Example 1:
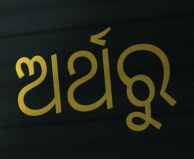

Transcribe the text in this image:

ଅର୍ଥରୁ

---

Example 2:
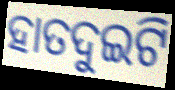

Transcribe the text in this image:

ହାତଦୁଇଟି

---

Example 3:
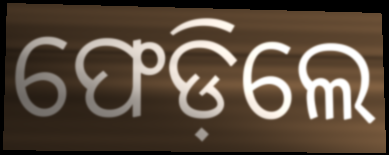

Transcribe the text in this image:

ଫେଡ଼ିଲେ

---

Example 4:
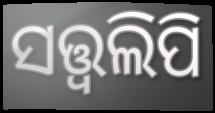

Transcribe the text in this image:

ସତ୍ତ୍ୱଲିପି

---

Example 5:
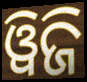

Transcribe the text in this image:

ୱିଜି